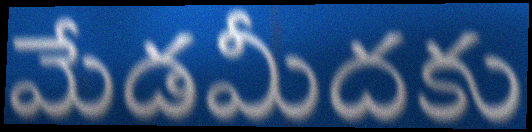
మేడమీదకు